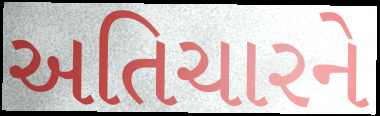
અતિચારને